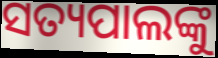
ସତ୍ୟପାଲଙ୍କୁ